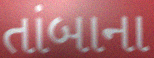
તાંબાના